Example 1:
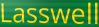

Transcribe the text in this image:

Lasswell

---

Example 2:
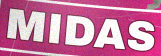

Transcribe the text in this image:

MIDAS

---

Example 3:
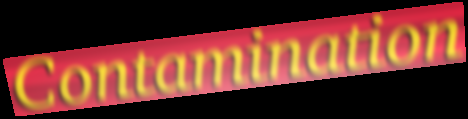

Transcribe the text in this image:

Contamination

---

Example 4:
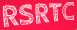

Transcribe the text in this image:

RSRTC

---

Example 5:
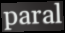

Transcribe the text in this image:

paral